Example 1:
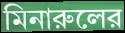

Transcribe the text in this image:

মিনারুলের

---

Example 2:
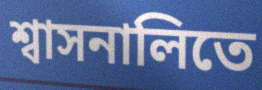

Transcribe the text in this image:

শ্বাসনালিতে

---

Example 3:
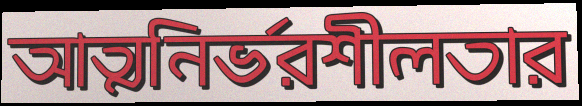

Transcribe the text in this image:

আত্মনির্ভরশীলতার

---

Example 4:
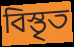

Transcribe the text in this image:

বিস্তৃত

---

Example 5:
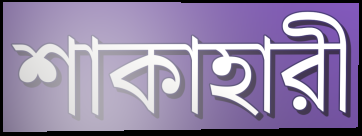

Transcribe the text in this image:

শাকাহারী